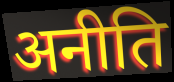
अनीति